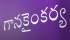
గానకైంకర్య